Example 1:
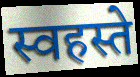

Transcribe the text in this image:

स्वहस्ते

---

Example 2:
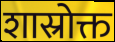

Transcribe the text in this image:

शास्रोक्त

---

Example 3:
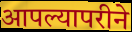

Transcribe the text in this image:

आपल्यापरीने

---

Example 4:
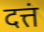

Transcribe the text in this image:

दत्तं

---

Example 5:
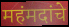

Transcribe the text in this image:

महंमदांचे